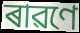
ৰাৱণে